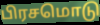
பிரசமொடு